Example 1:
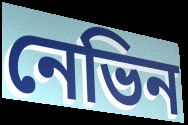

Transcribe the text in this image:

নেভিন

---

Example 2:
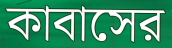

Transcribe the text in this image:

কাবাসের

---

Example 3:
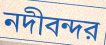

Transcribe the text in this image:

নদীবন্দর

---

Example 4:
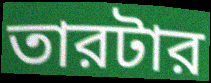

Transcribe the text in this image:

তারটার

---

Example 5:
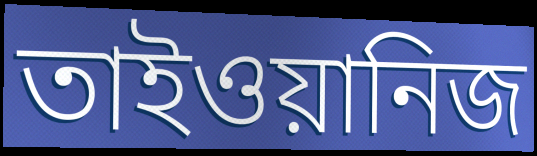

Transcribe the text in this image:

তাইওয়ানিজ